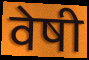
वेषी